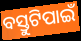
ବସ୍ତୁଟିପାଇଁ